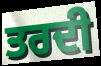
ਤਰਦੀ